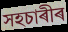
সহচাৰীৰ